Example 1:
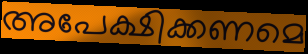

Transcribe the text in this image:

അപേക്ഷിക്കണമെ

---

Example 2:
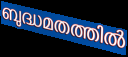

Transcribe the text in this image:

ബുദ്ധമതത്തിൽ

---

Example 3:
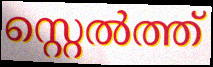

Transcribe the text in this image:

സ്റ്റെൽത്ത്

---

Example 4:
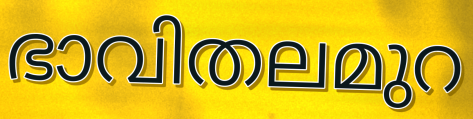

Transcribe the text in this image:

ഭാവിതലമുറ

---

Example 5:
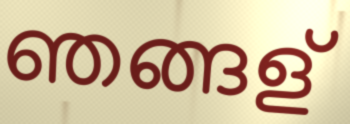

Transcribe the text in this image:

ഞങ്ങള്